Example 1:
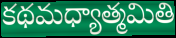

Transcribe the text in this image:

కథమధ్యాత్మమితి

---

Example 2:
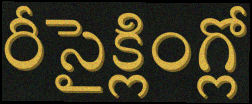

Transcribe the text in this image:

రీసైక్లింగ్లో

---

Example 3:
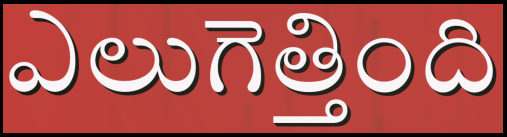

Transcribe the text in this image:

ఎలుగెత్తింది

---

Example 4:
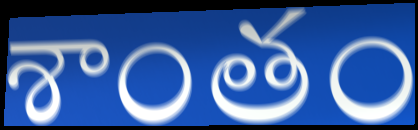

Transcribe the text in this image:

శాంతం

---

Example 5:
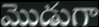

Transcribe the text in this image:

మొడుగా